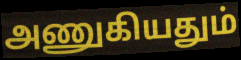
அணுகியதும்